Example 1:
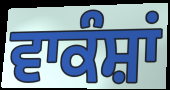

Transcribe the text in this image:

ਵਾਕੰਸ਼ਾਂ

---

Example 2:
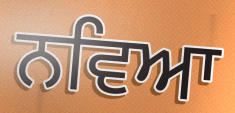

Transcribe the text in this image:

ਨਵਿਆ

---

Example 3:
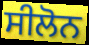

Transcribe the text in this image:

ਸੀਲੋਨ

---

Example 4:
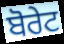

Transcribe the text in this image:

ਬੋਰੇਟ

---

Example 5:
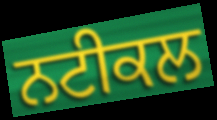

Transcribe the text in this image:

ਨਟੀਕਲ